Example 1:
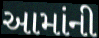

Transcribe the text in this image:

આમાંની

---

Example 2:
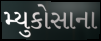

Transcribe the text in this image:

મ્યુકોસાના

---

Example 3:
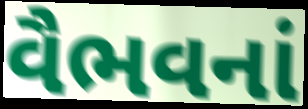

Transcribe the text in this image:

વૈભવનાં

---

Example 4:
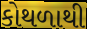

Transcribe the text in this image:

કોથળાથી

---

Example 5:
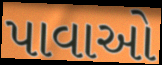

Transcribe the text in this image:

પાવાઓ